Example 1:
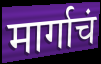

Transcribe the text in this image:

मार्गाचं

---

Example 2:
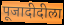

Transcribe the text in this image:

पूजादीदीला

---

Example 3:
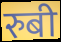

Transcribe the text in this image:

रुबी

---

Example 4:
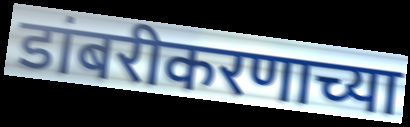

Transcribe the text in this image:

डांबरीकरणाच्या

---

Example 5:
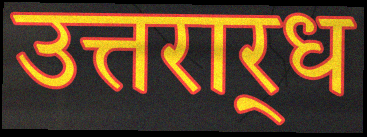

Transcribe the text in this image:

उत्तरार्ध